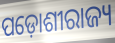
ପଡ଼ୋଶୀରାଜ୍ୟ